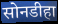
सोनडीहा